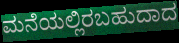
ಮನೆಯಲ್ಲಿರಬಹುದಾದ